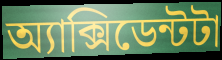
অ্যাক্সিডেন্টটা